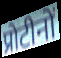
प्रोटीनों